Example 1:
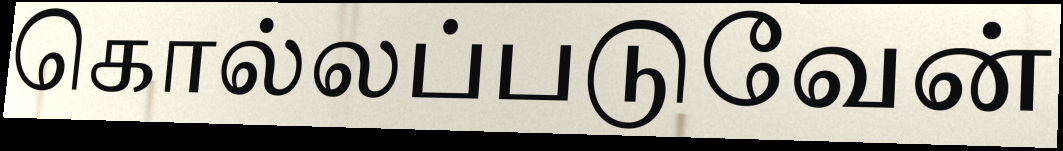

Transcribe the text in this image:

கொல்லப்படுவேன்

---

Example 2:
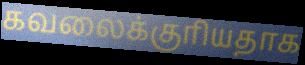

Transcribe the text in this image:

கவலைக்குரியதாக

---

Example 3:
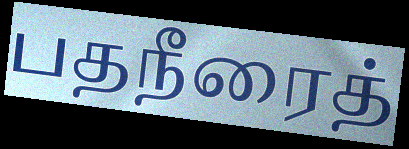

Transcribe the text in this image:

பதநீரைத்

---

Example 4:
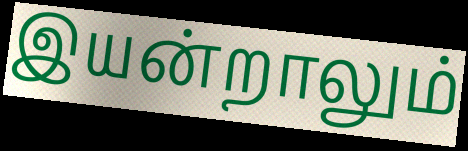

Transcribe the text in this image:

இயன்றாலும்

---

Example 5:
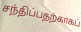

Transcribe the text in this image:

சந்திப்பதற்காகப்